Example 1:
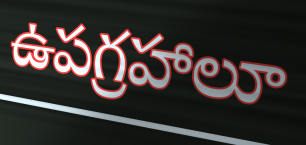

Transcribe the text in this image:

ఉపగ్రహాలూ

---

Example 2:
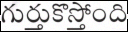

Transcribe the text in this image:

గుర్తుకొస్తోంది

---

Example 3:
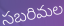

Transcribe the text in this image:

సబరిమల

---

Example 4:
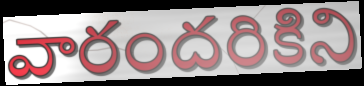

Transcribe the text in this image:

వారందరికిని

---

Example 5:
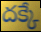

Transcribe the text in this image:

దక్కే